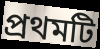
প্ৰথমটি